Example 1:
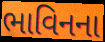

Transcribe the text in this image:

ભાવિનના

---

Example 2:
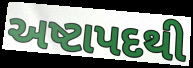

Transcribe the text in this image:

અષ્ટાપદથી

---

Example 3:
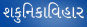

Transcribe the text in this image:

શકુનિકાવિહાર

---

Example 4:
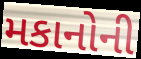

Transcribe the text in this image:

મકાનોની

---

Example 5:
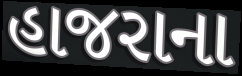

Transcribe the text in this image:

હાજરાના